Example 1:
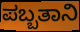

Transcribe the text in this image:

ಪಬ್ಬತಾನಿ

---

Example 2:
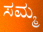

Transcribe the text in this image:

ಸಮ್ಮ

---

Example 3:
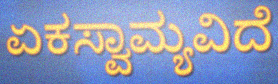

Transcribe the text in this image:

ಏಕಸ್ವಾಮ್ಯವಿದೆ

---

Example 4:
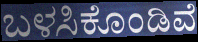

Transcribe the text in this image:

ಬಳಸಿಕೊಂಡಿವೆ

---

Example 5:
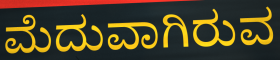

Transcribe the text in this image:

ಮೆದುವಾಗಿರುವ